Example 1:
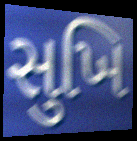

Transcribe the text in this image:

સુખિ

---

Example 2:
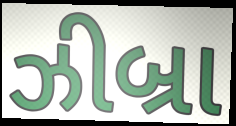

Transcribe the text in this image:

ઝીબ્રા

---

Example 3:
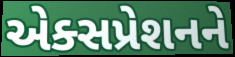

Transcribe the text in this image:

એક્સપ્રેશનને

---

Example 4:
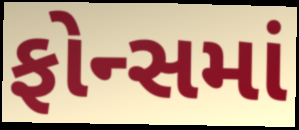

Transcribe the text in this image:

ફોન્સમાં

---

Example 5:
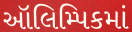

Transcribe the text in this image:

ઑલિમ્પિકમાં